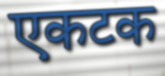
एकटक